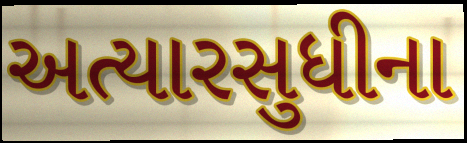
અત્યારસુધીના